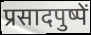
प्रसादपुष्पें